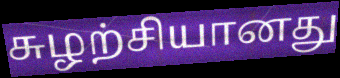
சுழற்சியானது